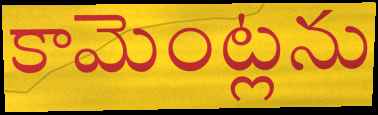
కామెంట్లను